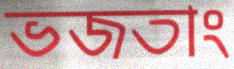
ভজতাং